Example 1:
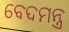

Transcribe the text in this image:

ବେଦମନ୍ତ୍ର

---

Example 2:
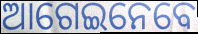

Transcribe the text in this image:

ଆଗେଇନେବେ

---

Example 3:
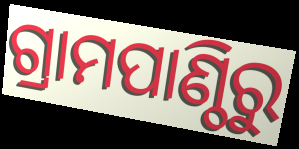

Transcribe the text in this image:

ଗ୍ରାମପାଣ୍ଠିରୁ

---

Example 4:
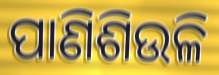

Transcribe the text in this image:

ପାଣିଶିଉଳି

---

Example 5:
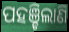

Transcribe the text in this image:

ପହଞ୍ଚିଲାଣି